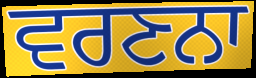
ਵਰਣਨਾ